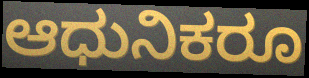
ಆಧುನಿಕರೂ